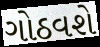
ગોઠવશે